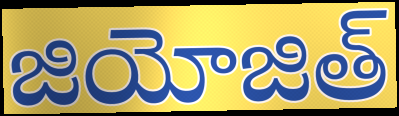
జియోజిత్